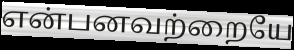
என்பனவற்றையே